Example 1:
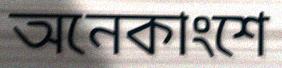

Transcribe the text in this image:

অনেকাংশে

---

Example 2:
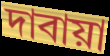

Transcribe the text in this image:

দাবায়া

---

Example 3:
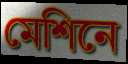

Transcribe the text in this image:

মেশিনে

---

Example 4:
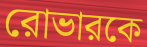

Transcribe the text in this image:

রোভারকে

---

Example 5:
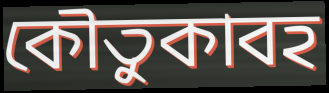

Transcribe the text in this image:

কৌতুকাবহ